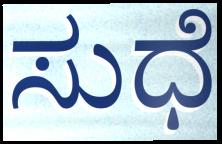
ಸುಧೆ